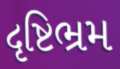
દૃષ્ટિભ્રમ